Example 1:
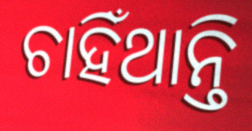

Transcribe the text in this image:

ଚାହିଁଥାନ୍ତି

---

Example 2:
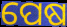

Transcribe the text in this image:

ପେଷ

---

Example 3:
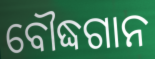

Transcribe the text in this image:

ବୌଦ୍ଧଗାନ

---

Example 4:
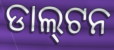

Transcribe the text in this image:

ଡାଲ୍‌ଟନ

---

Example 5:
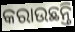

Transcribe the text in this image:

କରାଉଛନ୍ତି